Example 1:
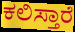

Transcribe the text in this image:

ಕಲಿಸ್ತಾರೆ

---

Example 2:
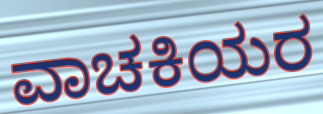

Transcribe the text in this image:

ವಾಚಕಿಯರ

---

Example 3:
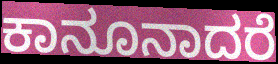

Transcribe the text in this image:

ಕಾನೂನಾದರೆ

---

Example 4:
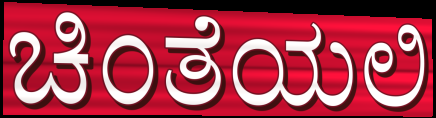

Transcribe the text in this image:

ಚಿಂತೆಯಲಿ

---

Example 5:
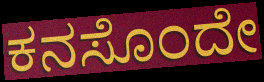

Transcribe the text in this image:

ಕನಸೊಂದೇ